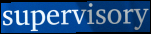
supervisory